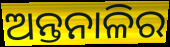
ଅନ୍ତନାଳିର